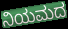
ನಿಯಮದ